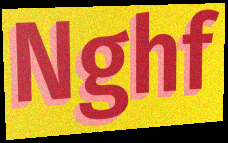
Nghf